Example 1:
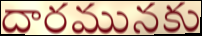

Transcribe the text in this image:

దారమునకు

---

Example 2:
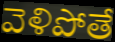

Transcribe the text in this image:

వెళిపోతే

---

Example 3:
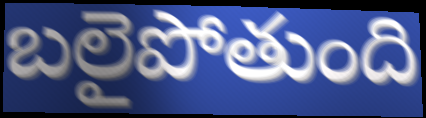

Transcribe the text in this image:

బలైపోతుంది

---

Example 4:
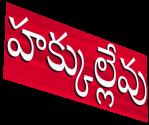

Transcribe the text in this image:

హక్కుల్లేవు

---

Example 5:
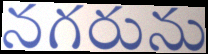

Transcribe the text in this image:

నగరును